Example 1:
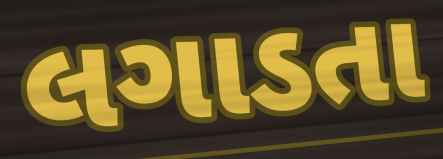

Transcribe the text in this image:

લગાડતા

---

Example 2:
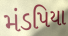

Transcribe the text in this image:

મંડપિયા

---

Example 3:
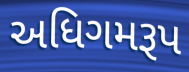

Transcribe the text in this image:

અધિગમરૂપ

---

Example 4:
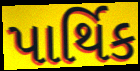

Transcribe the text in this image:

પાર્થિક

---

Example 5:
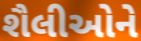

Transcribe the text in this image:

શૈલીઓને